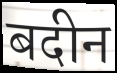
बदीन